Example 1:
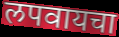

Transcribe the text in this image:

लपवायचा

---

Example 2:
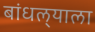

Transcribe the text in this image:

बांधल्याला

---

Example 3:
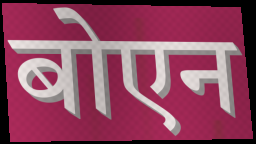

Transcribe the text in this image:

बोएन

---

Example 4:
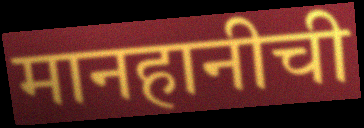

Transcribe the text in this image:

मानहानीची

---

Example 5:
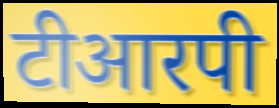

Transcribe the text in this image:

टीआरपी